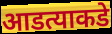
आडत्याकडे